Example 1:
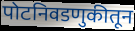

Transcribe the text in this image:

पोटनिवडणुकीतून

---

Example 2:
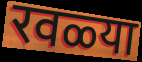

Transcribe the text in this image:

रवळ्या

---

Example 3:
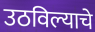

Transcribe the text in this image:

उठविल्याचे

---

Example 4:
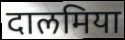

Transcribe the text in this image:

दालमिया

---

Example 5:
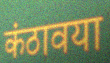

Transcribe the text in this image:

कंठावया